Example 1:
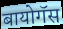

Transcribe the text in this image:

बायोगॅस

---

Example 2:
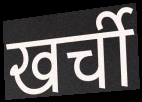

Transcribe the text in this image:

खर्ची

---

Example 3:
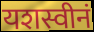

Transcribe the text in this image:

यशस्वीनं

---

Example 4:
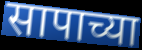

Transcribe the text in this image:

सापाच्या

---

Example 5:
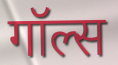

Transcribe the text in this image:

गॉल्स